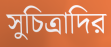
সুচিত্রাদির